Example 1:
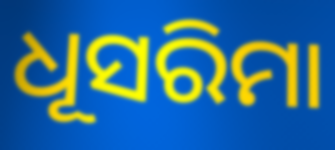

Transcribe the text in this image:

ଧୂସରିମା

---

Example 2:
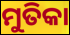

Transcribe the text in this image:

ମୁତିକା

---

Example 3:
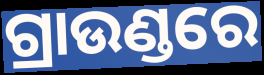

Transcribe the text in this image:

ଗ୍ରାଉଣ୍ଡରେ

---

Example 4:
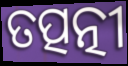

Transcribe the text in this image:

ତତ୍ପତ୍ନୀ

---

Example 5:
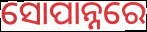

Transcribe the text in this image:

ସୋପାନ୍ନରେ